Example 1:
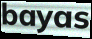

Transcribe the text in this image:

bayas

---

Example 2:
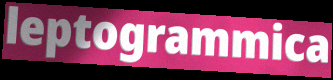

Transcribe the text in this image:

leptogrammica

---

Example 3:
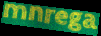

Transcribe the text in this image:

mnrega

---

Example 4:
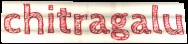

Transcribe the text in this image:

chitragalu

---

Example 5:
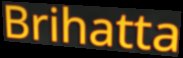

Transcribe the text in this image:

Brihatta